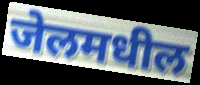
जेलमधील